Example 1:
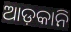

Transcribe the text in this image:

ଆଡ଼କାନି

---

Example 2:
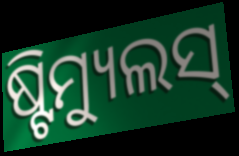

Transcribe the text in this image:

ଷ୍ଟିମ୍ୟୁଲସ୍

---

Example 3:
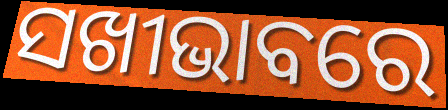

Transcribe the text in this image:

ସଖୀଭାବରେ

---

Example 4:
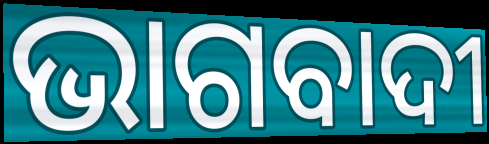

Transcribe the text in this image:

ଭାଗବାଦୀ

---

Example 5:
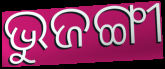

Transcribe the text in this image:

ଭୁଜଙ୍ଗୀ